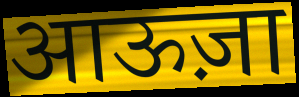
आऊज़ा